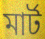
মার্ট